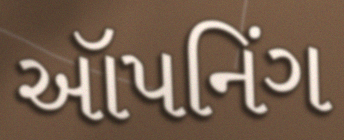
ઑપનિંગ